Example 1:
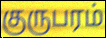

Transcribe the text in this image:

குருபரம்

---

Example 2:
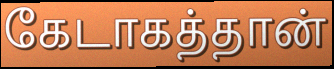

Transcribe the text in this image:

கேடாகத்தான்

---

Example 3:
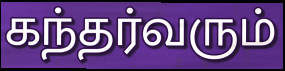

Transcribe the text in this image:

கந்தர்வரும்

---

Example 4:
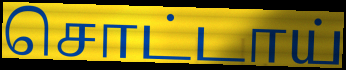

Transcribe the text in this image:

சொட்டாய்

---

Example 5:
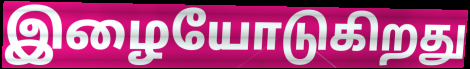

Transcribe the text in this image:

இழையோடுகிறது